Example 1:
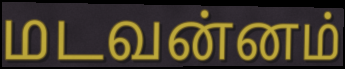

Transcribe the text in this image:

மடவன்னம்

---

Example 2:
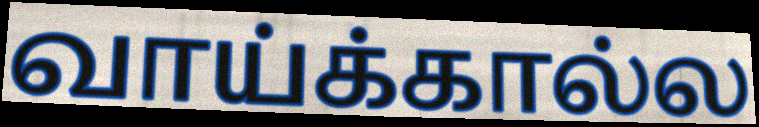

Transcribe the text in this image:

வாய்க்கால்ல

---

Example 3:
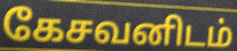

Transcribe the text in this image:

கேசவனிடம்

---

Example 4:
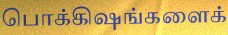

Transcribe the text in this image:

பொக்கிஷங்களைக்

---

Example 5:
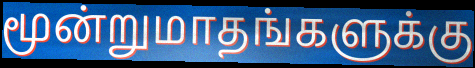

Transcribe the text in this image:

மூன்றுமாதங்களுக்கு